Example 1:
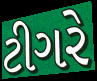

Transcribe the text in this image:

ટીગરે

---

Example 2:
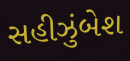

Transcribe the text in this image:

સહીઝુંબેશ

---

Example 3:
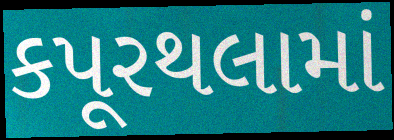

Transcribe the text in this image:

કપૂરથલામાં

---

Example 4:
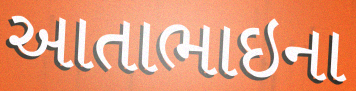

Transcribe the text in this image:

આતાભાઇના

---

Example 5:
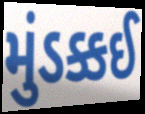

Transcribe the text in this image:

મુંડક્કઈ